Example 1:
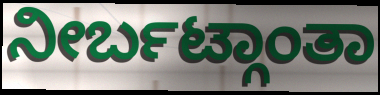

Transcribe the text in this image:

ನೀರ್ಬಟ್ಗಾಂತಾ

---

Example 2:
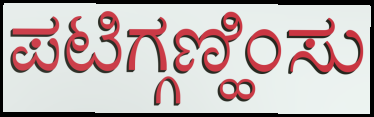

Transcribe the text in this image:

ಪಟಿಗ್ಗಣ್ಹಿಂಸು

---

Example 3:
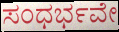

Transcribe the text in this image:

ಸಂಧರ್ಭವೇ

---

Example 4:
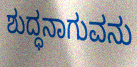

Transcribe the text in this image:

ಶುದ್ಧನಾಗುವನು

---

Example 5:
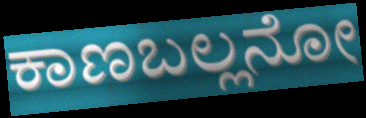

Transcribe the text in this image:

ಕಾಣಬಲ್ಲನೋ